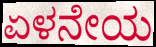
ಏಳನೇಯ